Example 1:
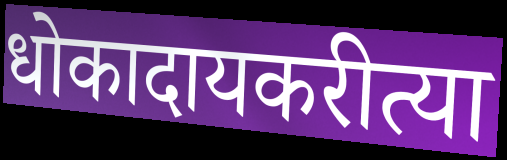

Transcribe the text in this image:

धोकादायकरीत्या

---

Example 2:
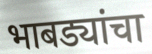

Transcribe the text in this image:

भाबड्यांचा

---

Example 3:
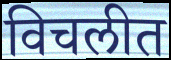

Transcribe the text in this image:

विचलीत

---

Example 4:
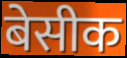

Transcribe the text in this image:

बेसीक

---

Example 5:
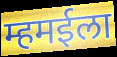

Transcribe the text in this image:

म्हमईला